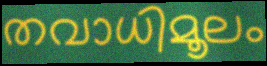
തവാധിമൂലം